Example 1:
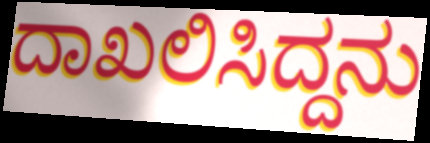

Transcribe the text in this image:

ದಾಖಲಿಸಿದ್ದನು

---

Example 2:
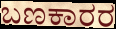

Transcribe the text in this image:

ಬಣಕಾರರ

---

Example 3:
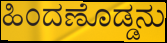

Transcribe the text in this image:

ಹಿಂದಣೊಡ್ಡನು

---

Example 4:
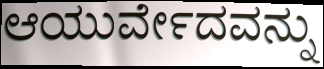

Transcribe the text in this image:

ಆಯುರ್ವೇದವನ್ನು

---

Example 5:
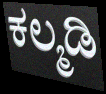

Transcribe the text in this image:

ಕಲ್ಮಡಿ